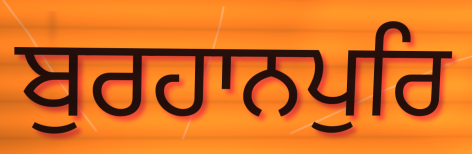
ਬੁਰਹਾਨਪੁਰਿ